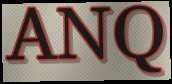
ANQ